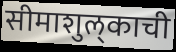
सीमाशुल्काची